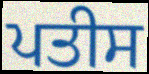
ਪਤੀਸ